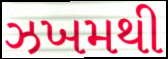
ઝખમથી